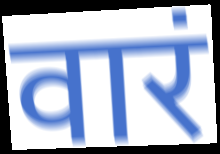
वारं